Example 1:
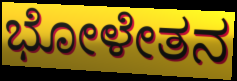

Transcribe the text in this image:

ಭೋಳೇತನ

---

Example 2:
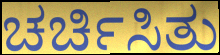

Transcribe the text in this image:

ಚರ್ಚಿಸಿತು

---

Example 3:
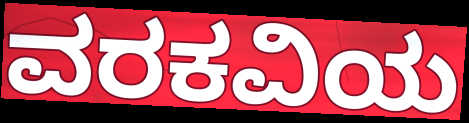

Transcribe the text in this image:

ವರಕವಿಯ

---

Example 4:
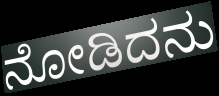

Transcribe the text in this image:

ನೋಡಿದನು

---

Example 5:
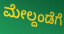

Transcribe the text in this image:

ಮೇಲ್ದಂಡೆಗೆ